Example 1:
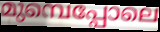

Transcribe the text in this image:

മുമ്പെപ്പോലെ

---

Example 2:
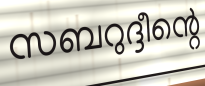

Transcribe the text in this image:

സബറുദ്ദീന്റെ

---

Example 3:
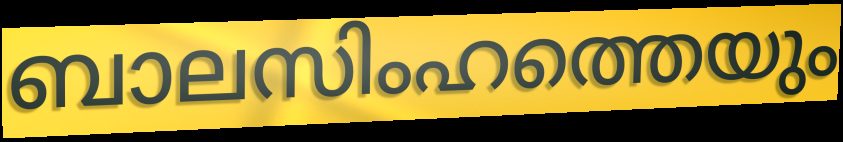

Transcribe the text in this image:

ബാലസിംഹത്തെയും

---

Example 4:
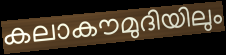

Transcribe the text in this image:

കലാകൗമുദിയിലും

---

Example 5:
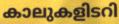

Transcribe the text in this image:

കാലുകളിടറി